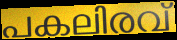
പകലിരവ്